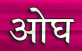
ओघ